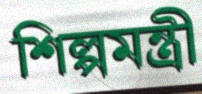
শিল্পমন্ত্রী